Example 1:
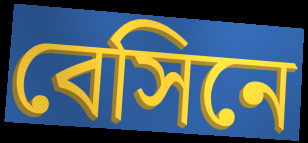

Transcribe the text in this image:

বেসিনে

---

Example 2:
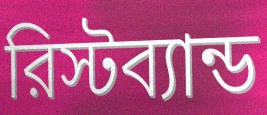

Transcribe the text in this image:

রিস্টব্যান্ড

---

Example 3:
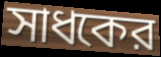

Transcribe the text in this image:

সাধকের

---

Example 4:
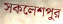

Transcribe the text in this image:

সকলেশপুর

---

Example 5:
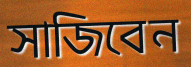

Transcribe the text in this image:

সাজিবেন